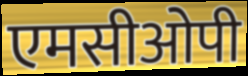
एमसीओपी